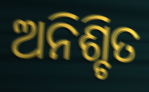
ଅନିଶ୍ଚିତ